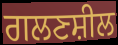
ਗਲਣਸ਼ੀਲ